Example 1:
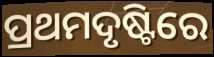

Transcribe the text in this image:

ପ୍ରଥମଦୃଷ୍ଟିରେ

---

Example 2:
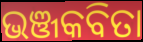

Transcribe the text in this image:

ଭଞ୍ଜକବିତା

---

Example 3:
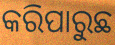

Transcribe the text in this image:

କରିପାରୁଛ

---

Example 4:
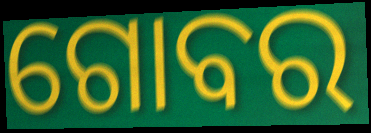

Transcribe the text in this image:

ଗୋବର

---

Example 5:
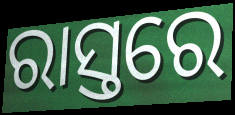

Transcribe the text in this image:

ରାସ୍ତରେ